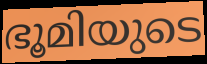
ഭൂമിയുടെ